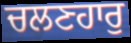
ਚਲਣਹਾਰੁ